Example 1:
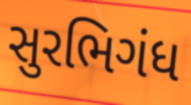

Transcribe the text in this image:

સુરભિગંધ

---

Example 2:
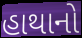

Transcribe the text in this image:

હાથાનો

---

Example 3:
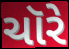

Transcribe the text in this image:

ચૉરે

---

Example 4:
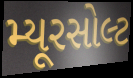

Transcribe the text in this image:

મ્યૂરસોલ્ટ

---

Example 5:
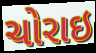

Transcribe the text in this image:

ચોરાઇ